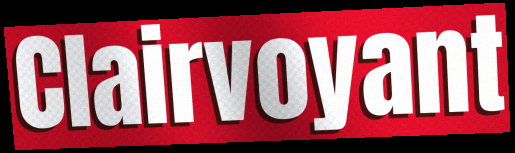
Clairvoyant